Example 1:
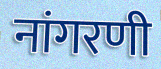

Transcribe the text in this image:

नांगरणी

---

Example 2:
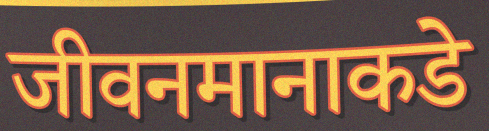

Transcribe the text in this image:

जीवनमानाकडे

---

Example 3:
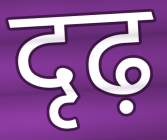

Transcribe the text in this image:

दृढ़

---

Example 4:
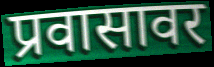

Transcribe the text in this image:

प्रवासावर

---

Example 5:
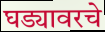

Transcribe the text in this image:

घड्यावरचे